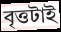
বৃত্তটাই